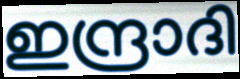
ഇന്ദ്രാദി